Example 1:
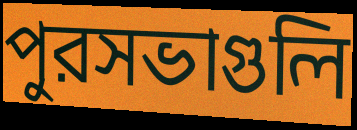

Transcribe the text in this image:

পুরসভাগুলি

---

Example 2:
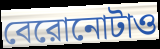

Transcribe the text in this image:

বেরোনোটাও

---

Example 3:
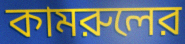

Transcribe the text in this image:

কামরুলের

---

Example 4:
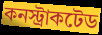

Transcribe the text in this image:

কনস্ট্রাকটেড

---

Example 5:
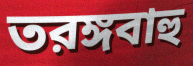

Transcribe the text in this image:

তরঙ্গবাহু